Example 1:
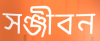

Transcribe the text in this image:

সঞ্জীবন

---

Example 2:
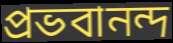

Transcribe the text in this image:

প্রভবানন্দ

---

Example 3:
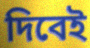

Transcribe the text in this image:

দিবেই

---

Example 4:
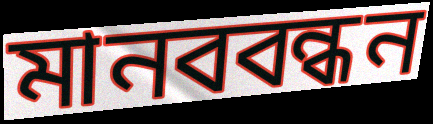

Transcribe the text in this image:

মানববন্ধন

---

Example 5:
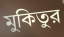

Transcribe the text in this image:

মুকিতুর